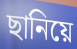
ছানিয়ে